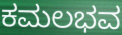
ಕಮಲಭವ